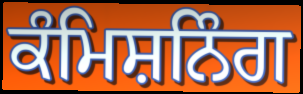
ਕੰਮਿਸ਼ਨਿੰਗ